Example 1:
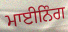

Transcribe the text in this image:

ਮਾਈਨਿੰਗ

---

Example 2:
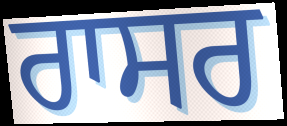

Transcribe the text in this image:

ਰਾਸਰ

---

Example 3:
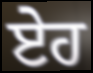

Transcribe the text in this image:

ਏਹ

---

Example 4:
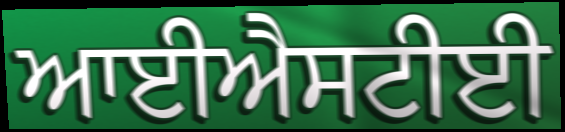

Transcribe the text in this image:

ਆਈਐਸਟੀਈ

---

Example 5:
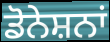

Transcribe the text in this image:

ਡੋਨੇਸ਼ਨਾਂ